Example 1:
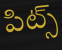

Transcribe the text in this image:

పిట్స్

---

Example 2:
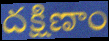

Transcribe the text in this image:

దక్షిణాం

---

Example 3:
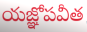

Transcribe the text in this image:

యజ్ఞోపవీత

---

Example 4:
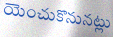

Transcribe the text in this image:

యెంచుకొనునట్లు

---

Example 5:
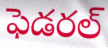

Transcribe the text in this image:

ఫెడరల్